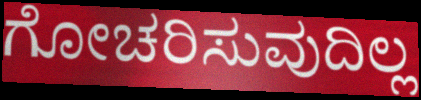
ಗೋಚರಿಸುವುದಿಲ್ಲ